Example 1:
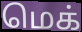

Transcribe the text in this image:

மெக்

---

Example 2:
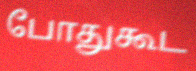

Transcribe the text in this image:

போதுகூட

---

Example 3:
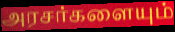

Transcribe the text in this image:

அரசர்களையும்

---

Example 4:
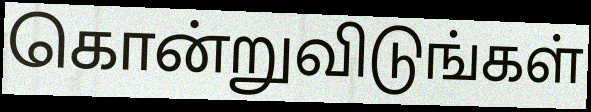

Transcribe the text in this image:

கொன்றுவிடுங்கள்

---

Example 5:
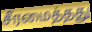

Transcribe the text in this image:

சீரமைத்தது